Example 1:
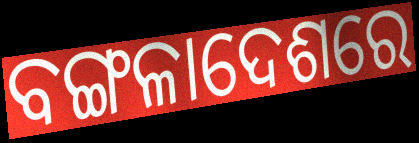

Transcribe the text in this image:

ବଙ୍ଗଳାଦେଶରେ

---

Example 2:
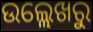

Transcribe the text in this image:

ଉଲ୍ଲେଖରୁ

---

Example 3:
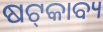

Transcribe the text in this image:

ଷଟ୍‌କାବ୍ୟ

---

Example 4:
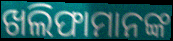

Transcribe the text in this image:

ଖଲିଫାମାନଙ୍କ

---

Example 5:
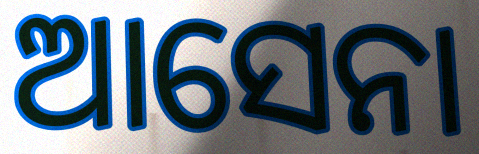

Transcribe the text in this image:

ଆସେନା